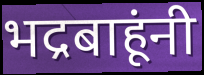
भद्रबाहूंनी